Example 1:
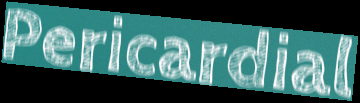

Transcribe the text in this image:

Pericardial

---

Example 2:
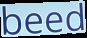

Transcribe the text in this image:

beed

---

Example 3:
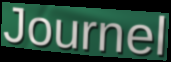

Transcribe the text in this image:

Journel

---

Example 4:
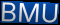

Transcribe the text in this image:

BMU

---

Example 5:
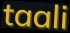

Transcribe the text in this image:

taali